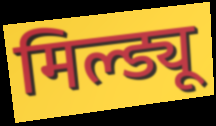
मिल्ड्यू